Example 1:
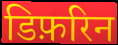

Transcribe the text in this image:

डिफ़रिन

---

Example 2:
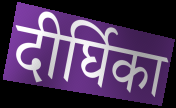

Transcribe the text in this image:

दीर्घिका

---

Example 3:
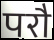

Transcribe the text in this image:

परौ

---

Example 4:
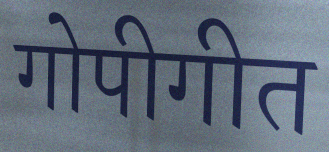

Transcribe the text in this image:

गोपीगीत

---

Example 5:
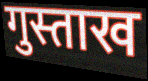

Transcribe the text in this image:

गुस्ताख